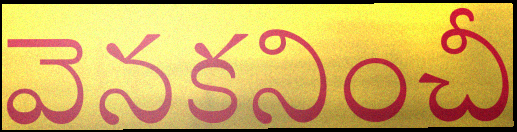
వెనకనించీ